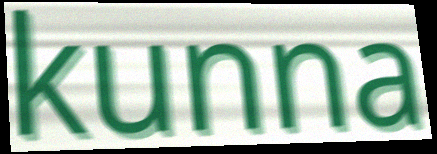
kunna